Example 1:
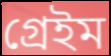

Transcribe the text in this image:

গ্রেইম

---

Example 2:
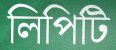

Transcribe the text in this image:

লিপিটি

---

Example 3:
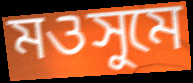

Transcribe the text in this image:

মওসুমে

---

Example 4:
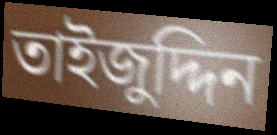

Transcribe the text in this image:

তাইজুদ্দিন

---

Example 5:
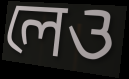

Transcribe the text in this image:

লেও